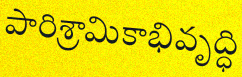
పారిశ్రామికాభివృద్ధి